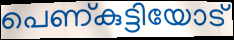
പെണ്കുട്ടിയോട്